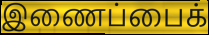
இணைப்பைக்